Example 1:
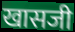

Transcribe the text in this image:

खासजी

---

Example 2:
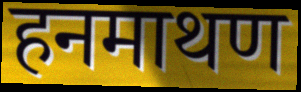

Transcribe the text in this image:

हनमाथण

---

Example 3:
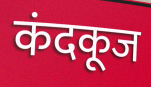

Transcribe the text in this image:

कंदकूज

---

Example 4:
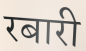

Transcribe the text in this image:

रबारी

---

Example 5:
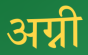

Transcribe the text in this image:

अग्नी